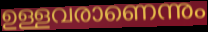
ഉള്ളവരാണെന്നും